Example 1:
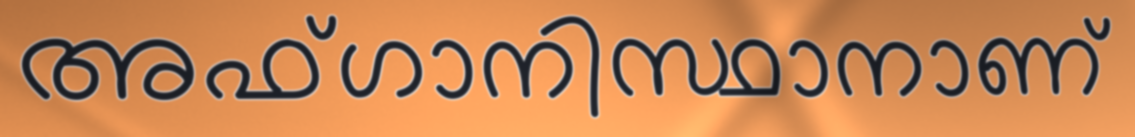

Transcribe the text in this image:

അഫ്ഗാനിസ്ഥാനാണ്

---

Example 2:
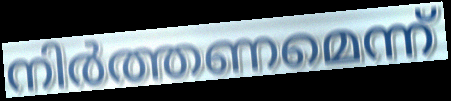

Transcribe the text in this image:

നിർത്തണമെന്ന്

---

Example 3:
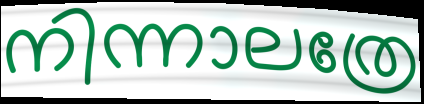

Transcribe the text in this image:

നിന്നാലത്രേ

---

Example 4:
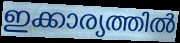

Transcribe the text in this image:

ഇക്കാര്യത്തിൽ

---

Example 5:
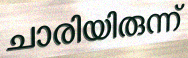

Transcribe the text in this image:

ചാരിയിരുന്ന്